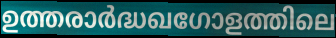
ഉത്തരാർദ്ധഖഗോളത്തിലെ